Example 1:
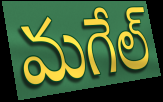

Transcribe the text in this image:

మగేల్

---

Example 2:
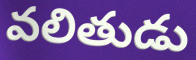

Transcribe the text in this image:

వలితుడు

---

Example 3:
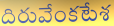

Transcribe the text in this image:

దిరువేంకటేశ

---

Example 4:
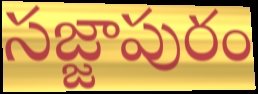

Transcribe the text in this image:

సజ్జాపురం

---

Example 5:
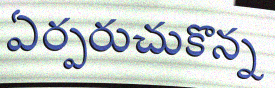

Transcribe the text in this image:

ఏర్పరుచుకొన్న